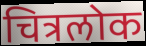
चित्रलोक